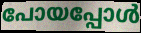
പോയപ്പോൾ